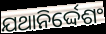
ଯଥାନିର୍ଦ୍ଦେଶଂ